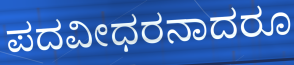
ಪದವೀಧರನಾದರೂ